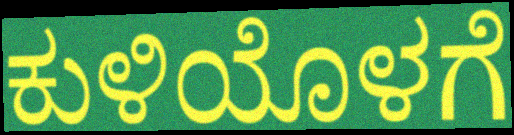
ಕುಳಿಯೊಳಗೆ